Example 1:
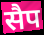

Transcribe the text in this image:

सैप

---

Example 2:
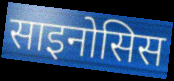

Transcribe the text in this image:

साइनोसिस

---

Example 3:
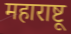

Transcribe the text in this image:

महाराष्टू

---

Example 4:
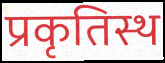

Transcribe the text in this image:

प्रकृतिस्थ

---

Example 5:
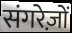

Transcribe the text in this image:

संगरेज़ों